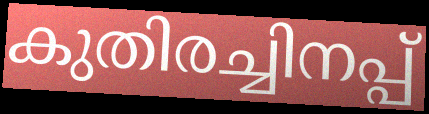
കുതിരച്ചിനപ്പ്